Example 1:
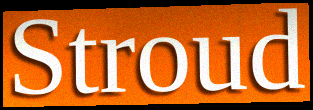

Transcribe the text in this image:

Stroud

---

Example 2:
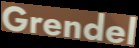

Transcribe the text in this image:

Grendel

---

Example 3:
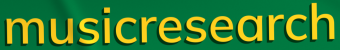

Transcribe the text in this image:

musicresearch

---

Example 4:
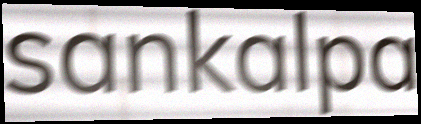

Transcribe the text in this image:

sankalpa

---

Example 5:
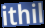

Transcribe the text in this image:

ithil